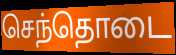
செந்தொடை